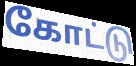
கோட்டு